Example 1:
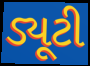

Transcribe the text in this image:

ડ્યૂટી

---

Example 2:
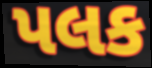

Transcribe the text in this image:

પલક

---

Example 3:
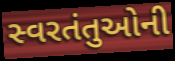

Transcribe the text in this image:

સ્વરતંતુઓની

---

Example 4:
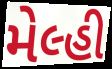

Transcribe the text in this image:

મેલ્હી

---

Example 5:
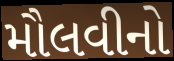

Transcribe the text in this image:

મૌલવીનો